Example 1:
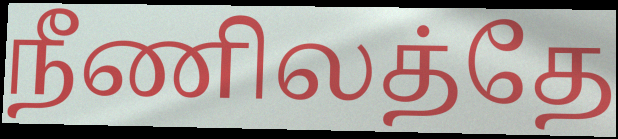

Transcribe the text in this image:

நீணிலத்தே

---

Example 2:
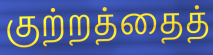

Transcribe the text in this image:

குற்றத்தைத்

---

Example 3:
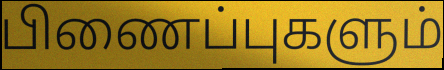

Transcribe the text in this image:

பிணைப்புகளும்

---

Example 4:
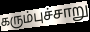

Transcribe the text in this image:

கரும்புச்சாறு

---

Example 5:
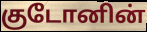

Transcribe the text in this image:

குடோனின்